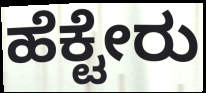
ಹೆಕ್ಟೇರು